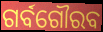
ଗର୍ବଗୌରବ